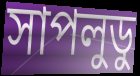
সাপলুডু